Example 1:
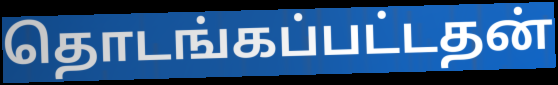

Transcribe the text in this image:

தொடங்கப்பட்டதன்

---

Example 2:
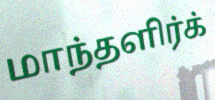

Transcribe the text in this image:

மாந்தளிர்க்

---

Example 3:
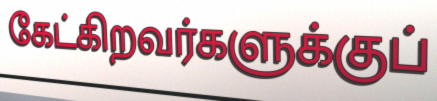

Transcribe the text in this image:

கேட்கிறவர்களுக்குப்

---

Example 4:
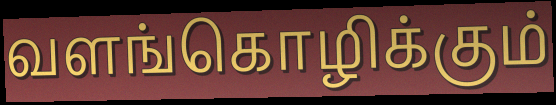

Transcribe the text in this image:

வளங்கொழிக்கும்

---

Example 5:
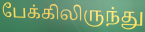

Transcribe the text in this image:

பேக்கிலிருந்து